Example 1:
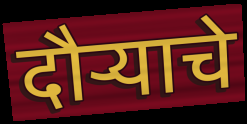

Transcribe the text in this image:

दौर्‍याचे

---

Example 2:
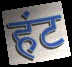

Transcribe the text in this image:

हंट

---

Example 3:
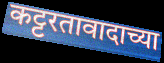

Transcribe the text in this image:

कट्टरतावादाच्या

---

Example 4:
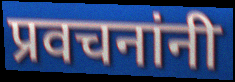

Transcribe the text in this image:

प्रवचनांनी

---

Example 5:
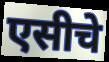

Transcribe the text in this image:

एसीचे